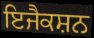
ਇਜੈਕਸ਼ਨ